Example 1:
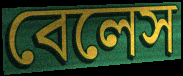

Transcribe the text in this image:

বেলেস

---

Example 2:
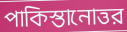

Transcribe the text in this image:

পাকিস্তানোত্তর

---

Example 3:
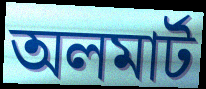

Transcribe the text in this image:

অলমার্ট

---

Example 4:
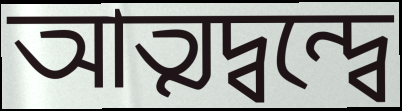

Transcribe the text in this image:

আত্মদ্বন্দ্বে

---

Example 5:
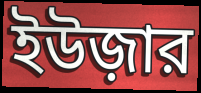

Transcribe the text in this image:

ইউজ়ার